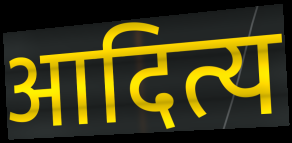
आदित्य